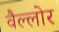
वैल्लोर